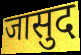
जासुद